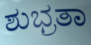
ಶುಭ್ರತಾ